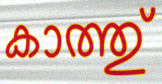
കാത്തു്